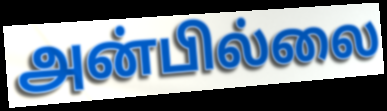
அன்பில்லை